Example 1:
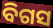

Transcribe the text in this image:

ବିଗସ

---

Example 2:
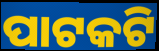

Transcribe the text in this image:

ପାଟକଟି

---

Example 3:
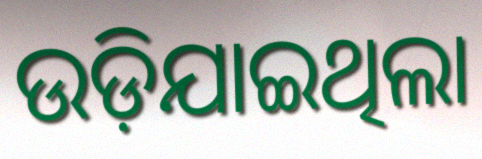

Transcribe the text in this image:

ଉଡ଼ିଯାଇଥିଲା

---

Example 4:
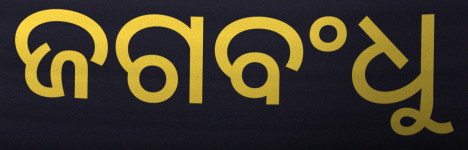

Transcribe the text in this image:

ଜଗବଂଧୁ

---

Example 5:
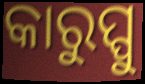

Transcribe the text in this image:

କାରୁପ୍ପୁ